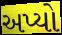
અપ્યો